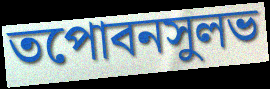
তপোবনসুলভ